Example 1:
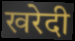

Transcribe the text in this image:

खरेदी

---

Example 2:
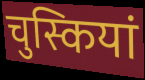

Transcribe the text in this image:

चुस्कियां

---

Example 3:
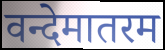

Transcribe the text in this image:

वन्देमातरम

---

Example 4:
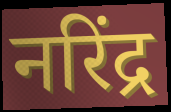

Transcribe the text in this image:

नरिंद्र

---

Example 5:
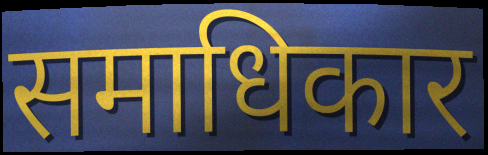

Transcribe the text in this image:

समाधिकार